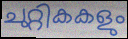
ചുറ്റികകളും